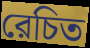
রেচিত